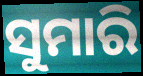
ସୁମାରି